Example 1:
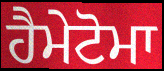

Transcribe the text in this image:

ਹੈਮੇਟੋਮਾ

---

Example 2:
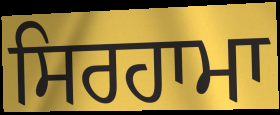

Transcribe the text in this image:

ਸਿਰਹਾਮਾ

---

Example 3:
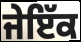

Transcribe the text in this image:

ਜੇਇੱਕ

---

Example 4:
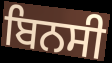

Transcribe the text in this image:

ਬਿਨਸੀ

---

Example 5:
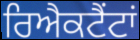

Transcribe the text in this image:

ਰਿਐਕਟੈਂਟਾਂ